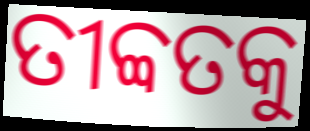
ତୀବ୍ବତକୁ